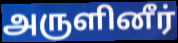
அருளினீர்